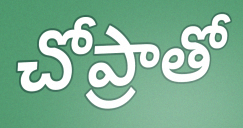
చోప్రాతో